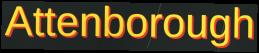
Attenborough